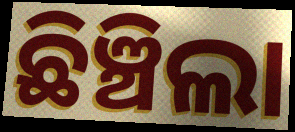
ଛିଞ୍ଚିଲା